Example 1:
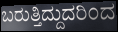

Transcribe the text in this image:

ಬರುತ್ತಿದ್ದುದರಿಂದ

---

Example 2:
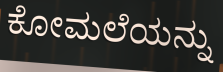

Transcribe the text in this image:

ಕೋಮಲೆಯನ್ನು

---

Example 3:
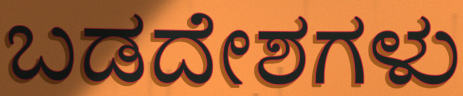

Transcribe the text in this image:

ಬಡದೇಶಗಳು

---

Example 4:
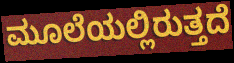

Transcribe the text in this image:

ಮೂಲೆಯಲ್ಲಿರುತ್ತದೆ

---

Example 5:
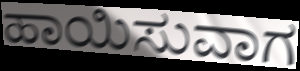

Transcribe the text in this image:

ಹಾಯಿಸುವಾಗ